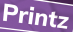
Printz